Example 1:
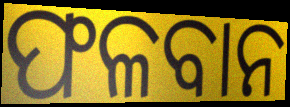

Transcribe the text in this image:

ଫଳବାନ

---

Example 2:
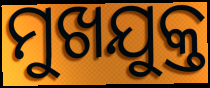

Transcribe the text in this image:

ମୁଖଯୁକ୍ତ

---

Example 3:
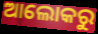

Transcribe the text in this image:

ଆଲୋକରୁ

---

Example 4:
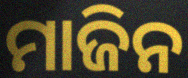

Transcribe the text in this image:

ମାଜିନ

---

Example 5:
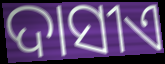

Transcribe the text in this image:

ଦାସୀଏ